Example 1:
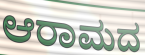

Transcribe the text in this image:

ಆರಾಮದ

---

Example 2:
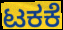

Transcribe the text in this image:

ಟಕಕೆ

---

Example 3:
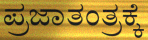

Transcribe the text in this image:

ಪ್ರಜಾತಂತ್ರಕ್ಕೆ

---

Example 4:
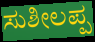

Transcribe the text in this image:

ಸುಶೀಲಪ್ಪ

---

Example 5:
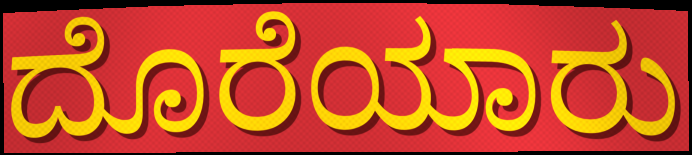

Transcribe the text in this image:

ದೊರೆಯಾರು